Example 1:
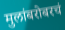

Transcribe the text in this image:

मुलांबरोबरचं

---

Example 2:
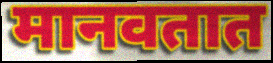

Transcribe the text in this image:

मानवतात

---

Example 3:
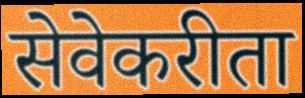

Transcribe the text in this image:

सेवेकरीता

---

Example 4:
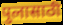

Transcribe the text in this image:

पुलासाठी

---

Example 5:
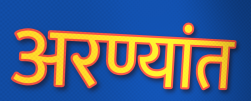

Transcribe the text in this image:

अरण्यांत